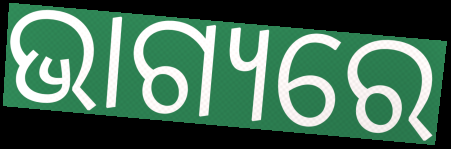
ଭାଗ୍ୟରେ